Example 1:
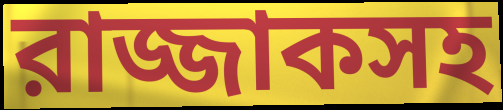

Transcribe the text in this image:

রাজ্জাকসহ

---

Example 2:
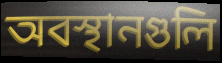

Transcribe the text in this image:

অবস্থানগুলি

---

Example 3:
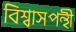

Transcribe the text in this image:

বিশ্বাসপন্থী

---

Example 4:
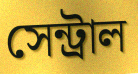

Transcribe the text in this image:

সেন্ট্রাল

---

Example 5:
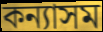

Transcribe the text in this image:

কন্যাসম